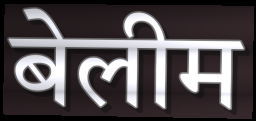
बेलीम